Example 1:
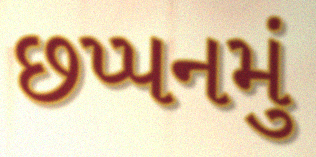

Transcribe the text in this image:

છપ્પનમું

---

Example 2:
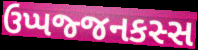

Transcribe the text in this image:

ઉપ્પજ્જનકસ્સ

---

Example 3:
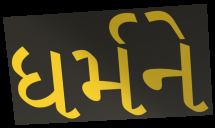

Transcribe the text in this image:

ધર્મને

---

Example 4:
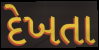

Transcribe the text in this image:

દેખતા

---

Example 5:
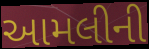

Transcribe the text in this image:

આમલીની